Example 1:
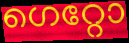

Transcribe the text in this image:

ഗെറ്റോ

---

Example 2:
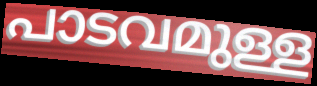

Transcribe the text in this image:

പാടവമുള്ള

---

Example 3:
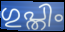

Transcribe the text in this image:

ഗുപ്തിം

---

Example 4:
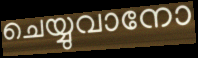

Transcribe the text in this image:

ചെയ്യുവാനോ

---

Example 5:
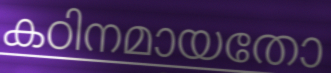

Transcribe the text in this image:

കഠിനമായതോ